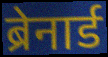
ब्रेनार्ड